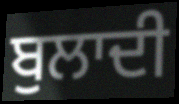
ਬੁਲਾਦੀ